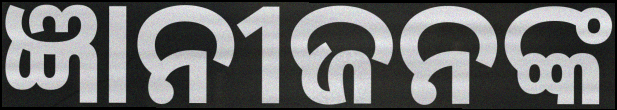
ଜ୍ଞାନୀଜନଙ୍କ